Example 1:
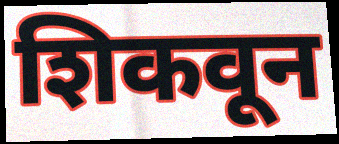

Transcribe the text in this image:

शिकवून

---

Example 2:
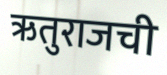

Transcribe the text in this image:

ऋतुराजची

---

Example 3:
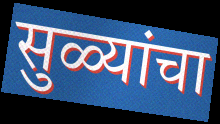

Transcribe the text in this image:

सुळ्यांचा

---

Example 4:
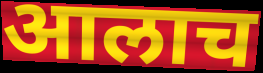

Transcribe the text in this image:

आलाच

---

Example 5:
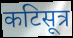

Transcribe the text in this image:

कटिसूत्र